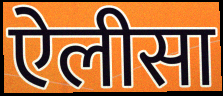
ऐलीसा